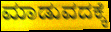
ಮಾಡುವದಕ್ಕೆ